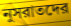
নুসরাতদের